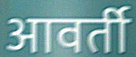
आवर्ती